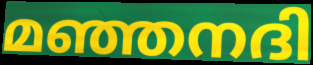
മഞ്ഞനദി